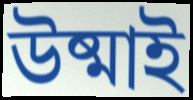
উষ্মাই